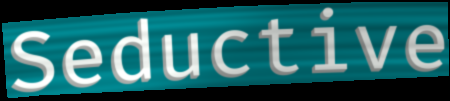
Seductive